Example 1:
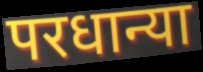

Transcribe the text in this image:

परधान्या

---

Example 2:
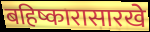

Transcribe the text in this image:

बहिष्कारासारखे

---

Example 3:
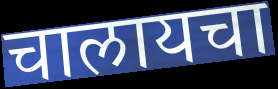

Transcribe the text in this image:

चालायचा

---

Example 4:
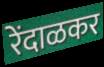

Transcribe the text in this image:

रेंदाळकर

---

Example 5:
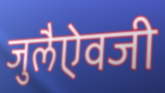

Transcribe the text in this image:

जुलैऐवजी